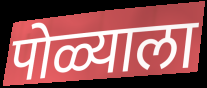
पोळ्याला